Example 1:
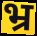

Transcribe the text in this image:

भ्र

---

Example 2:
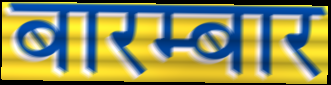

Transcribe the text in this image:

बारम्बार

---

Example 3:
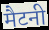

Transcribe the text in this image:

मैटनी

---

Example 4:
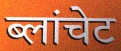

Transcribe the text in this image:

ब्लांचेट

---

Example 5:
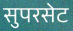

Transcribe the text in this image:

सुपरसेट